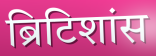
ब्रिटिशांस